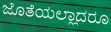
ಜೊತೆಯಲ್ಲಾದರೂ